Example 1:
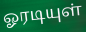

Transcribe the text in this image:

ஓரடியுள்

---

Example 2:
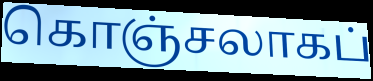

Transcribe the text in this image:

கொஞ்சலாகப்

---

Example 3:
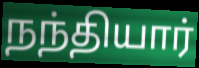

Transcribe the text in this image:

நந்தியார்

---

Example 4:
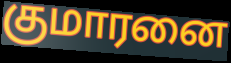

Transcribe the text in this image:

குமாரனை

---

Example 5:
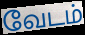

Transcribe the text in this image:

வேடம்